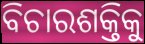
ବିଚାରଶକ୍ତିକୁ